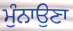
ਮੁੰਨਾਉਣਾ